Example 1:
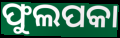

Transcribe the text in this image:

ଫୁଲପକା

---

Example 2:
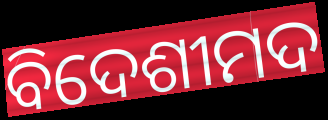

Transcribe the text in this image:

ବିଦେଶୀମଦ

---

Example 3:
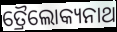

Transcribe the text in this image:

ତ୍ରୈଲୋକ୍ୟନାଥ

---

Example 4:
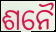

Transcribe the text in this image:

ଶନୈ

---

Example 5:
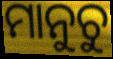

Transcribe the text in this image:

ମାନୁଚୁ